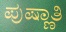
ಪುಷ್ಣಾತಿ